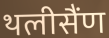
थलीसैंण